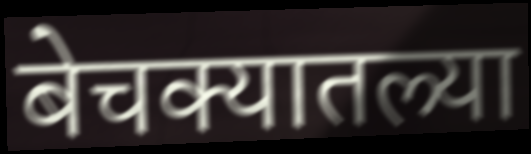
बेचक्यातल्या